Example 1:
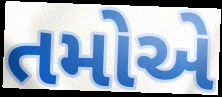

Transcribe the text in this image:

તમોએ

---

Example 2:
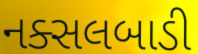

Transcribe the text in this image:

નક્સલબાડી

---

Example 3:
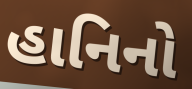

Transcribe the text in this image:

હાનિનો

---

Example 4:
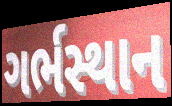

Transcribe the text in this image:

ગર્ભસ્થાન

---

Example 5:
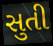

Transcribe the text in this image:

સુતી